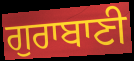
ਗੁਰਾਬਾਣੀ